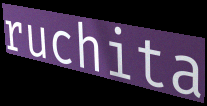
ruchita